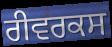
ਰੀਵਰਕਸ